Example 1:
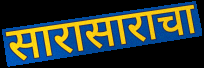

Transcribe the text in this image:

सारासाराचा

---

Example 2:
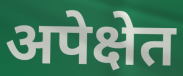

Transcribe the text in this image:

अपेक्षेत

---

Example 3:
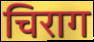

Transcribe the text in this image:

चिराग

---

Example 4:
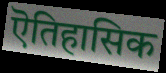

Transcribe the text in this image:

ऎतिहासिक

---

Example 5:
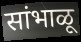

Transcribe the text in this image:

सांभाळू